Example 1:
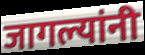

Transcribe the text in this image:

जागल्यांनी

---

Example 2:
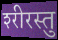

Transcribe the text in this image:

श्रीरस्तु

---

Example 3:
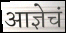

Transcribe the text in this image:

आज्ञेचं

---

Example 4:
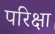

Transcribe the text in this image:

परिक्षा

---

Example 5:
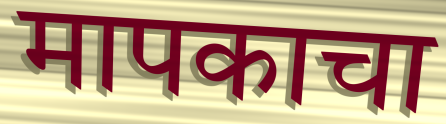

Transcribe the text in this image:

मापकाचा